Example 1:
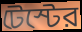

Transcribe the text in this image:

টেস্টের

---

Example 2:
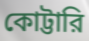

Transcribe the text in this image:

কোট্টারি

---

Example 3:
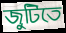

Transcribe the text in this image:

জুটিতে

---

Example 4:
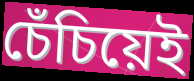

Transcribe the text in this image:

চেঁচিয়েই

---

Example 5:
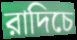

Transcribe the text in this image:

রাদিচে